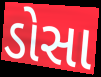
ડોસા